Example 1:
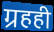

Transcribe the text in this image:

ग्रहही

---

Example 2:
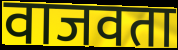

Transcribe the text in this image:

वाजवता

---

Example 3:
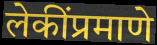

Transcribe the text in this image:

लेकींप्रमाणे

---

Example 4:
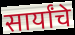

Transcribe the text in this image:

सार्यांचे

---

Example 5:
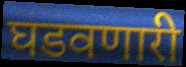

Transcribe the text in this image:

घडवणारी